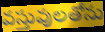
వస్తువులతోను